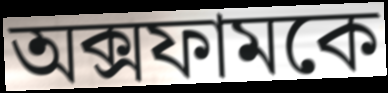
অক্সফামকে